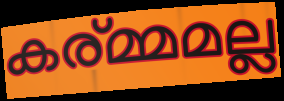
കര്മ്മമല്ല